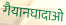
गैयानघादाओ